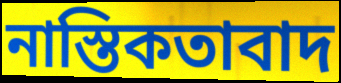
নাস্তিকতাবাদ